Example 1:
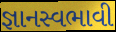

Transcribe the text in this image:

જ્ઞાનસ્વભાવી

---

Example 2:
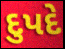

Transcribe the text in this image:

દુપદે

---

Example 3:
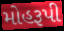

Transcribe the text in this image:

મોહરૂપી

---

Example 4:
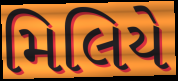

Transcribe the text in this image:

મિલિયે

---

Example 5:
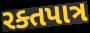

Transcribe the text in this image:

રક્તપાત્ર